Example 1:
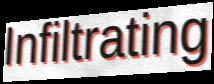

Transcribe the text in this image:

Infiltrating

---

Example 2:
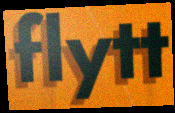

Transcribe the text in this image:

flytt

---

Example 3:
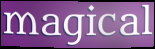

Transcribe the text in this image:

magical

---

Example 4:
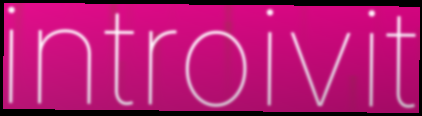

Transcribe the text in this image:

introivit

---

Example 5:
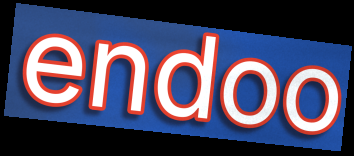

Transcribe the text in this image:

endoo